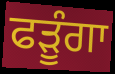
ਫੜੂੰਗਾ